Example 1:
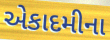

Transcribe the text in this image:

એકાદમીના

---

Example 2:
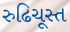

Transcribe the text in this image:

રુઢિચૂસ્ત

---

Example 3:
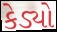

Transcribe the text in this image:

કેડ્યો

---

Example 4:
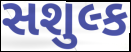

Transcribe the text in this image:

સશુલ્ક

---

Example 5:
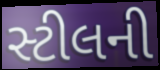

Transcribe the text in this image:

સ્ટીલની